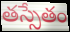
తస్సేతం